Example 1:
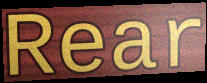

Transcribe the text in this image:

Rear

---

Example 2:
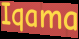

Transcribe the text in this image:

Iqama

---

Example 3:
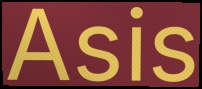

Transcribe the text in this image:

Asis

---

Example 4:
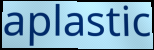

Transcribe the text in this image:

aplastic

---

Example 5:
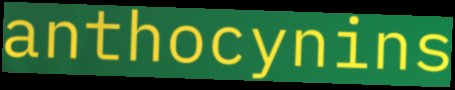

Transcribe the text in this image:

anthocynins